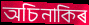
অচিনাকিৰ